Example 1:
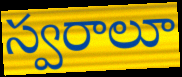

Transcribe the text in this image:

స్వరాలూ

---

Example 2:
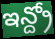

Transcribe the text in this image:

ఇన్ద్రో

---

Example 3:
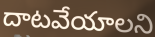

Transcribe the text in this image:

దాటవేయాలని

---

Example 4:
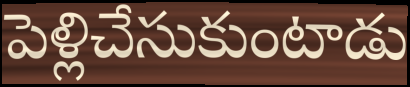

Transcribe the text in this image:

పెళ్లిచేసుకుంటాడు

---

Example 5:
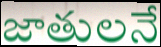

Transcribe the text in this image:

జాతులనే